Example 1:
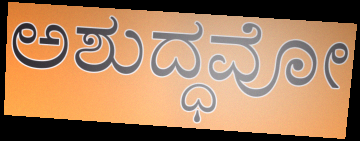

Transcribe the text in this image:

ಅಶುದ್ಧವೋ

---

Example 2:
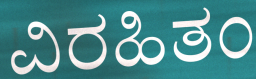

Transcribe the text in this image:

ವಿರಹಿತಂ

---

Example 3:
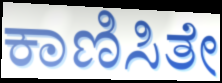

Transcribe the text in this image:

ಕಾಣಿಸಿತೇ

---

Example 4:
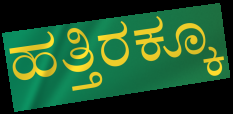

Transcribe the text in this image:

ಹತ್ತಿರಕ್ಕೂ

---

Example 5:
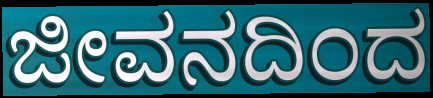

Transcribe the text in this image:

ಜೀವನದಿಂದ